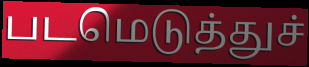
படமெடுத்துச்